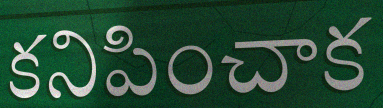
కనిపించాక